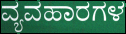
ವ್ಯವಹಾರಗಳ